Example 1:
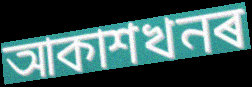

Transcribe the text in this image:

আকাশখনৰ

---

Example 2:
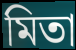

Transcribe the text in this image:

মিতা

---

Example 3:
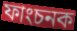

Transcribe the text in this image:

ফাংচনক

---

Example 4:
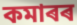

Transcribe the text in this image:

কমাৰৰ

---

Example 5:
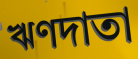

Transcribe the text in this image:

ঋণদাতা